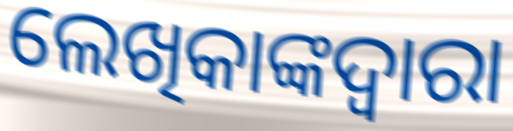
ଲେଖିକାଙ୍କଦ୍ୱାରା